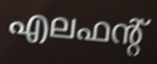
എലഫന്റ്